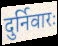
दुर्निवारः